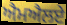
ਐਮਐਲਏ